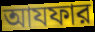
আযফার